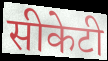
सीकेटी